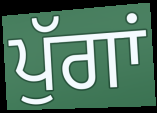
ਪੁੱਗਾਂ